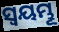
ସ୍ଵୟମ୍ଭୂ